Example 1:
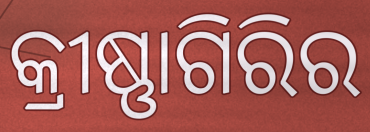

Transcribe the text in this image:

କ୍ରୀଷ୍ଣାଗିରିର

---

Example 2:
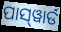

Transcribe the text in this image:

ପାସ୍‌ୱାର୍ଡ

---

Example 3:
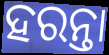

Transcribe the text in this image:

ହରନ୍ତା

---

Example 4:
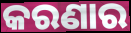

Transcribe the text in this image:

କରଣାର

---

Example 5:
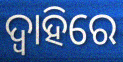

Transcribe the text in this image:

ଦ୍ୱାହିରେ